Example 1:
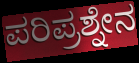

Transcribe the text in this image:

ಪರಿಪ್ರಶ್ನೇನ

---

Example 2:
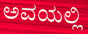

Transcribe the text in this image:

ಅವಯಲ್ಲಿ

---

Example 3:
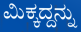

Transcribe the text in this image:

ಮಿಕ್ಕದ್ದನ್ನು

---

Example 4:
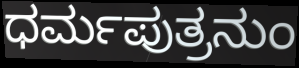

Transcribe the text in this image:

ಧರ್ಮಪುತ್ರನುಂ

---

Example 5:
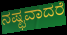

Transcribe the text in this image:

ನಷ್ಟವಾದರೆ